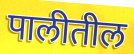
पालीतील